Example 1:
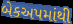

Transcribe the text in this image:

બેકઅપમાંથી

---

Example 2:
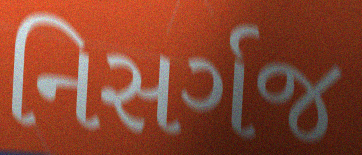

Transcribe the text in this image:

નિસર્ગજ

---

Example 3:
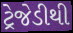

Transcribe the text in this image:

ટ્રેજેડીથી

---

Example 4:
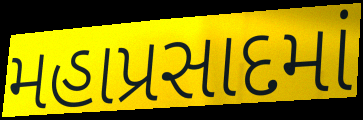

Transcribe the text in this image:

મહાપ્રસાદમાં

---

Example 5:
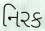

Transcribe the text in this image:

નિરક